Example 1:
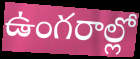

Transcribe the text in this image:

ఉంగరాల్లో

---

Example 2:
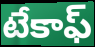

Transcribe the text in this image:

టేకాఫ్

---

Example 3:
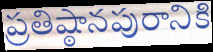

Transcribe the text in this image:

ప్రతిష్ఠానపురానికి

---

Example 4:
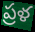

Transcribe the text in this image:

ప్రళ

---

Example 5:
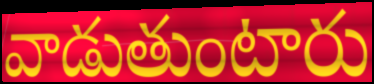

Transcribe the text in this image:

వాడుతుంటారు